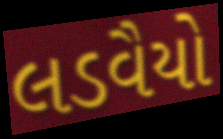
લડવૈયો